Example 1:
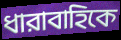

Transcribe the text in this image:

ধারাবাহিকে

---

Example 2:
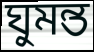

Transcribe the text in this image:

ঘুমন্ত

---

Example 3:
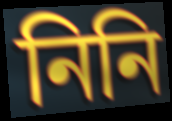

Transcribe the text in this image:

নিনি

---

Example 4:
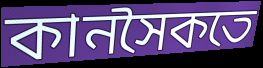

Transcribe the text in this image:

কানসৈকতে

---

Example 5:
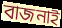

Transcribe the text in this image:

বাজনাই